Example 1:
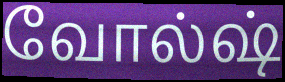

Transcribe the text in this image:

வோல்ஷ்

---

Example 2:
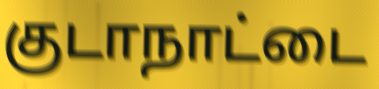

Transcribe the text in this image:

குடாநாட்டை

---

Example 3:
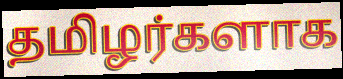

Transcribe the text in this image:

தமிழர்களாக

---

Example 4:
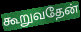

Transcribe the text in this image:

கூறுவதேன்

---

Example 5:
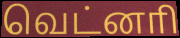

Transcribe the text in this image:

வெட்னரி